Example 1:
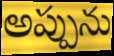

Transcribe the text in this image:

అప్పును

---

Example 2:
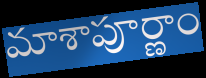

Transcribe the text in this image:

మాశాపూర్ణాం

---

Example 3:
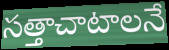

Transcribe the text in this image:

సత్తాచాటాలనే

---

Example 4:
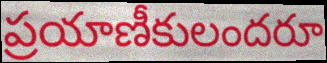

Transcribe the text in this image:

ప్రయాణీకులందరూ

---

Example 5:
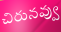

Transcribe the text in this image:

చిరునవ్వు